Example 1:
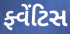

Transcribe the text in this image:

ફ્વેંટિસ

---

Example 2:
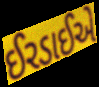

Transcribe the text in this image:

ઈરડાઈએ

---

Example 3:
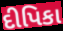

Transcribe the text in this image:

દીપિકા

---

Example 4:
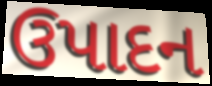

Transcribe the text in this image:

ઉપાદન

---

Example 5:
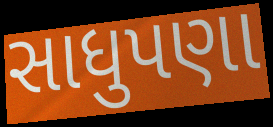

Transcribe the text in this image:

સાધુપણા